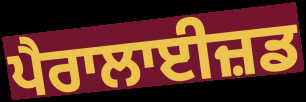
ਪੈਰਾਲਾਈਜ਼ਡ